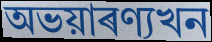
অভয়াৰণ্যখন